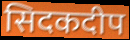
सिदकदीप